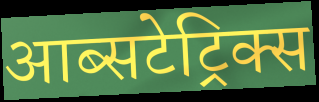
आब्सटेट्रिक्स